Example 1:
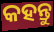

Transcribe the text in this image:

କହନ୍ତୁ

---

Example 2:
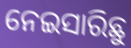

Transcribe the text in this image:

ନେଇସାରିଛୁ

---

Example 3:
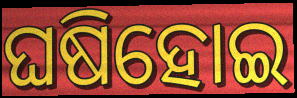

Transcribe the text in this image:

ଘଷିହୋଇ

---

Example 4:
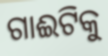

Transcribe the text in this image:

ଗାଈଟିକୁ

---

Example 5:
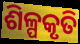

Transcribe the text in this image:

ଶିଳ୍ପକୃତି